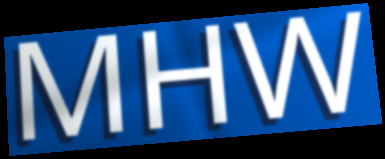
MHW